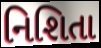
નિશિતા